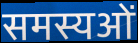
समस्यओं